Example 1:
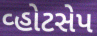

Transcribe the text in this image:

વ્હોટસેપ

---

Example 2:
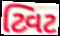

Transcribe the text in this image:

ટ્વિટ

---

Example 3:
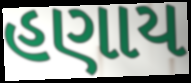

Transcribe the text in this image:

હણાય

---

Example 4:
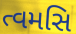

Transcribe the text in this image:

ત્વમસિ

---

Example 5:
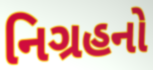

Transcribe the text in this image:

નિગ્રહનો